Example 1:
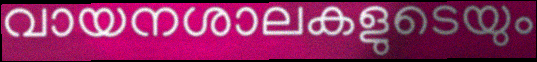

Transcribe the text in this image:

വായനശാലകളുടെയും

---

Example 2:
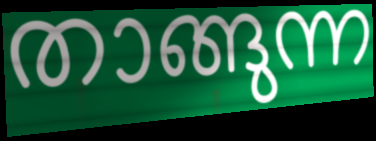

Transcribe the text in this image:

താങ്ങുന്ന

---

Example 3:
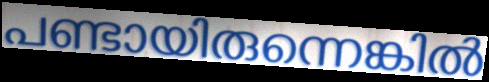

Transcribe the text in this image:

പണ്ടായിരുന്നെങ്കിൽ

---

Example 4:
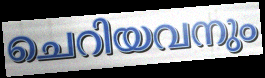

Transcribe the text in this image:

ചെറിയവനും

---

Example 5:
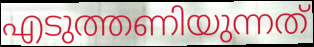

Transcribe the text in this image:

എടുത്തണിയുന്നത്